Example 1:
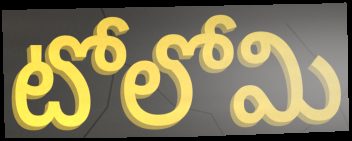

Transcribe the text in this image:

టోలోమి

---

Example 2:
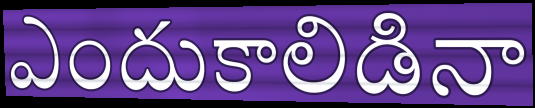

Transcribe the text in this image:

ఎందుకాలిడినా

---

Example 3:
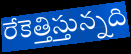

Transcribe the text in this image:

రేకెత్తిస్తున్నది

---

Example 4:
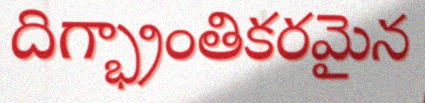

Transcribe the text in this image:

దిగ్భ్రాంతికరమైన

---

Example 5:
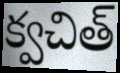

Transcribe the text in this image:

క్వచిత్